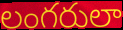
లంగరులా